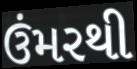
ઉંમરથી